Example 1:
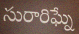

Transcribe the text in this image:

సురారిఘ్నే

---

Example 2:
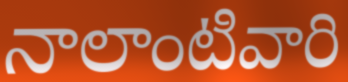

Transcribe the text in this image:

నాలాంటివారి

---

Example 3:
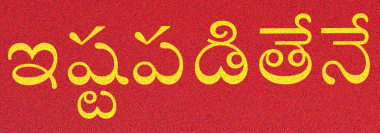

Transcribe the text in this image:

ఇష్టపడితేనే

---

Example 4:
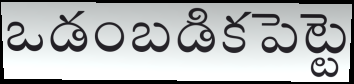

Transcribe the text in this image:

ఒడంబడికపెట్టె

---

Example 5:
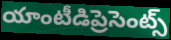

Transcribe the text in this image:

యాంటీడిప్రెసెంట్స్